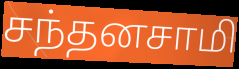
சந்தனசாமி